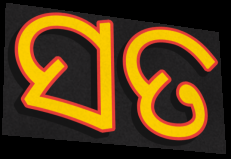
ସତ